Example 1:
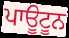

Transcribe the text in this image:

ਪਾਊਟੂਨ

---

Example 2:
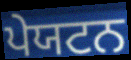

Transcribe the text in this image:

ਪੇਯਟਨ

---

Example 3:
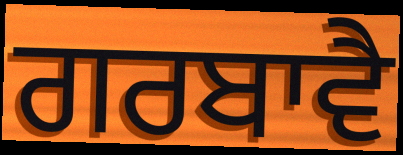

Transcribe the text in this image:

ਗਰਬਾਵੈ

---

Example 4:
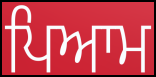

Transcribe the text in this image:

ਪਿਆਮ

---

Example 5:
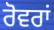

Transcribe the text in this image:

ਰੋਵਰਾਂ